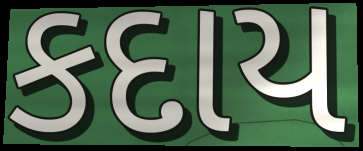
કદાય